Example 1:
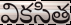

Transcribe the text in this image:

వికసిత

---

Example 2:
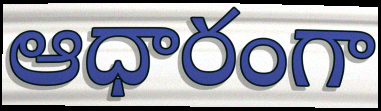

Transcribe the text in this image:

ఆధారంగా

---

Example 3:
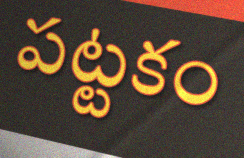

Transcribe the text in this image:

పట్టకం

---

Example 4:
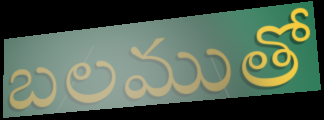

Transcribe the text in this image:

బలముతో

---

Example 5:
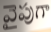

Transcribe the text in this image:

వైపుగా